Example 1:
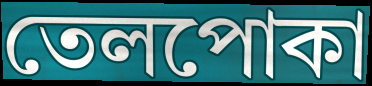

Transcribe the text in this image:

তেলপোকা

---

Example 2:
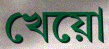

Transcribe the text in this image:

খেয়ো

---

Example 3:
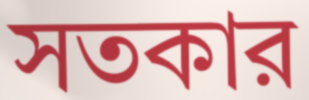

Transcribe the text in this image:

সতকার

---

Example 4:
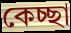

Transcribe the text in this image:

কেচ্ছা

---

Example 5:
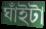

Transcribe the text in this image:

ঘাঁইটা